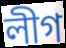
লীগ